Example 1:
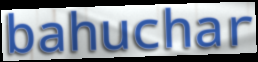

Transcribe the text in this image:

bahuchar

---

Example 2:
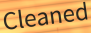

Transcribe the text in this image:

Cleaned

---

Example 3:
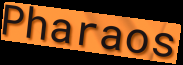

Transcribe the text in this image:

Pharaos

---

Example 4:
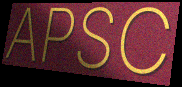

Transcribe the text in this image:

APSC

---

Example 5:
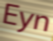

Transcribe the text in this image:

Eyn